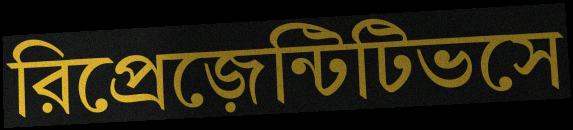
রিপ্রেজ়েন্টিটিভসে